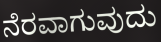
ನೆರವಾಗುವುದು